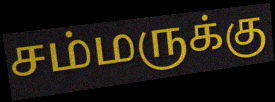
சம்மருக்கு